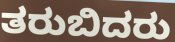
ತರುಬಿದರು